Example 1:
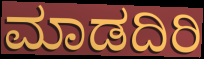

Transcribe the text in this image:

ಮಾಡದಿರಿ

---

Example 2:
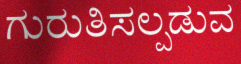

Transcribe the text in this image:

ಗುರುತಿಸಲ್ಪಡುವ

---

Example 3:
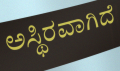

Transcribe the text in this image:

ಅಸ್ಥಿರವಾಗಿದೆ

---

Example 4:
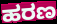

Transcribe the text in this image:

ಹರಣ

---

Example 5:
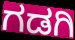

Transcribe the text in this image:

ಗಡಗಿ